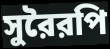
সুরৈরপি